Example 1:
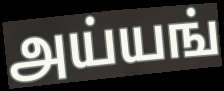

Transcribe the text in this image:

அய்யங்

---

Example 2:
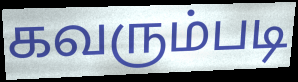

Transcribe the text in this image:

கவரும்படி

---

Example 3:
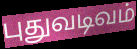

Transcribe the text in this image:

புதுவடிவம்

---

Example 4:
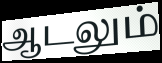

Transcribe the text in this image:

ஆடலும்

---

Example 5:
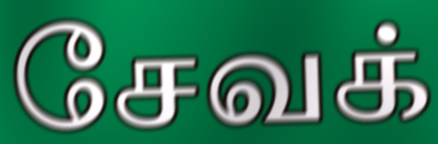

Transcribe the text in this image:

சேவக்